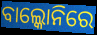
ବାଲ୍କୋନିରେ